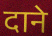
दाने